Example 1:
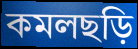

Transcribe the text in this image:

কমলছড়ি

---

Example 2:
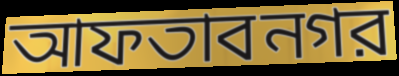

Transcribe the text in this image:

আফতাবনগর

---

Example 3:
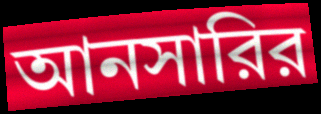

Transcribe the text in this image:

আনসারির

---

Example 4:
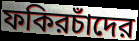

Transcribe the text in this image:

ফকিরচাঁদের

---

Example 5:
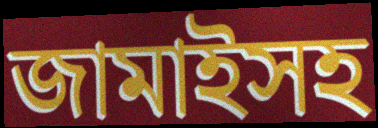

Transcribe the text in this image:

জামাইসহ